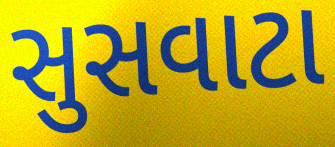
સુસવાટા